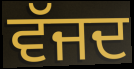
ਵੱਜਦ